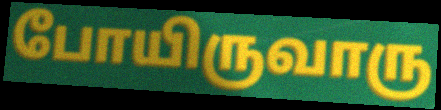
போயிருவாரு